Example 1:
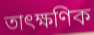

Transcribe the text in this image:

তাৎক্ষণিক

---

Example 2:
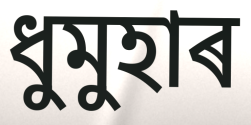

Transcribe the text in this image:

ধুমুহাৰ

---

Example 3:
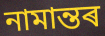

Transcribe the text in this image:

নামান্তৰ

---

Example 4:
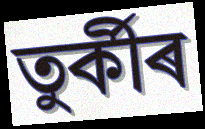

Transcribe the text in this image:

তুৰ্কীৰ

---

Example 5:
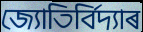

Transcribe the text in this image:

জ্যোতিৰ্বিদ্যাৰ